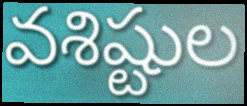
వశిష్టుల